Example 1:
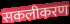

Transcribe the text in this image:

सकलीकरण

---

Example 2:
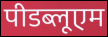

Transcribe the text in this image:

पीडब्लूएम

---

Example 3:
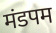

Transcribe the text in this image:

मंडपम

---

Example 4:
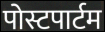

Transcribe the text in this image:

पोस्टपार्टम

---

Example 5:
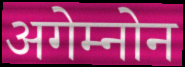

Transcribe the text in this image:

अगेम्नोन